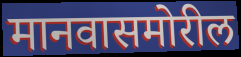
मानवासमोरील